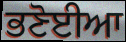
ਭਣੋਈਆ